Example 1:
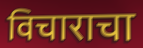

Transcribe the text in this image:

विचाराचा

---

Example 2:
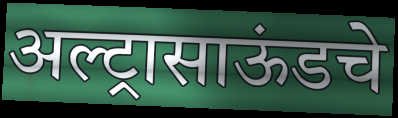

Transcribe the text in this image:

अल्ट्रासाऊंडचे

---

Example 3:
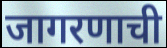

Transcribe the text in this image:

जागरणाची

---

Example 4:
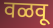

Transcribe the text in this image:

वळवू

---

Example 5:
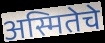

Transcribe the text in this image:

अस्मितेचे